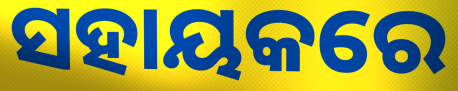
ସହାୟକରେ